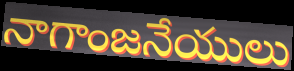
నాగాంజనేయులు